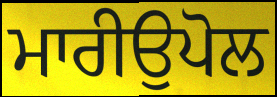
ਮਾਰੀਉਪੋਲ